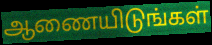
ஆணையிடுங்கள்